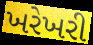
ખરેખરી